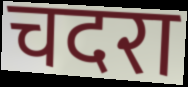
चदरा